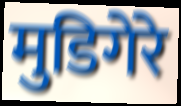
मुडिगेरे